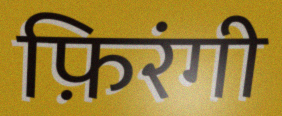
फ़िरंगी